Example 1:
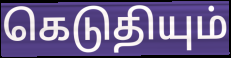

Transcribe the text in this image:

கெடுதியும்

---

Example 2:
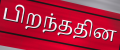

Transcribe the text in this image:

பிறந்ததின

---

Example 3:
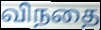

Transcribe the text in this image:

விநதை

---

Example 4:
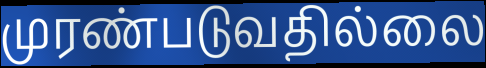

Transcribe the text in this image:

முரண்படுவதில்லை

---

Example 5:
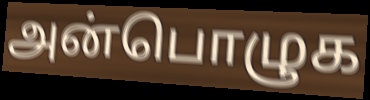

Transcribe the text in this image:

அன்பொழுக